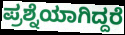
ಪ್ರಶ್ನೆಯಾಗಿದ್ದರೆ